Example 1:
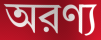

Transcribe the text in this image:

অরণ্য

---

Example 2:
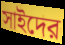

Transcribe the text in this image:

সাইদের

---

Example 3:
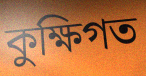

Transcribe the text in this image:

কুক্ষিগত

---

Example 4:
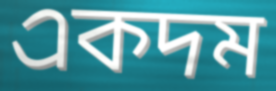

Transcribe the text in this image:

একদম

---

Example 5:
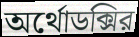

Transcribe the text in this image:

অর্থোডক্সির